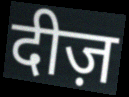
दीज़